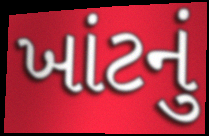
ખાંટનું